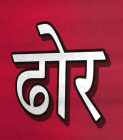
ढोर